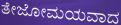
ತೇಜೋಮಯವಾದ